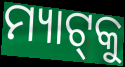
ମ୍ୟାଟ୍‌କୁ